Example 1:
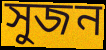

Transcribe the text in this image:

সুজন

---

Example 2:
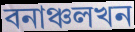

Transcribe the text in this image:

বনাঞ্চলখন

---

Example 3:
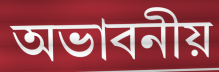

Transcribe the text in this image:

অভাবনীয়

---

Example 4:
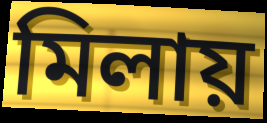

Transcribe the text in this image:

মিলায়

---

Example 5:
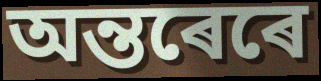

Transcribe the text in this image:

অন্তৰেৰে